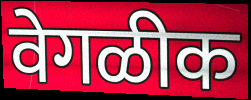
वेगळीक